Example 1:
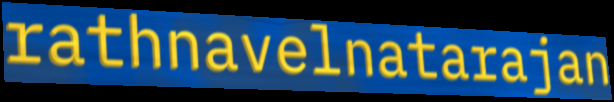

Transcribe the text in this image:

rathnavelnatarajan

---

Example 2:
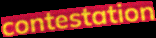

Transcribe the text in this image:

contestation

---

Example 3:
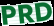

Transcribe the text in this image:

PRD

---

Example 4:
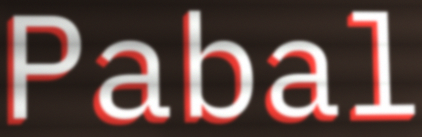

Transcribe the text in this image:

Pabal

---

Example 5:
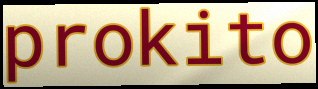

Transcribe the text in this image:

prokito